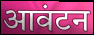
आवंटन